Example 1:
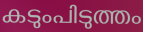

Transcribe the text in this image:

കടുംപിടുത്തം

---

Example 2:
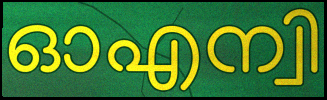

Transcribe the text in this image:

ഓഎന്വി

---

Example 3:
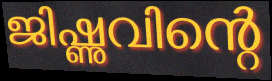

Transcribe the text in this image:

ജിഷ്ണുവിന്റെ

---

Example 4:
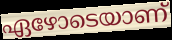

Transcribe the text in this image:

ഏഴോടെയാണ്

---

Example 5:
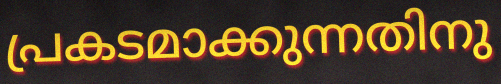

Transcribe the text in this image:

പ്രകടമാക്കുന്നതിനു